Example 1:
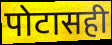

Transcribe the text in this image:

पोटासही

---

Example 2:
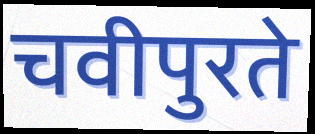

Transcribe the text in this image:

चवीपुरते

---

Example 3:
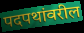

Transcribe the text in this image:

पदपथांवरील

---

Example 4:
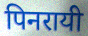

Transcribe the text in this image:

पिनरायी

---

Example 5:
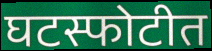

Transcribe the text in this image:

घटस्फोटीत